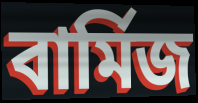
বাৰ্মিজ